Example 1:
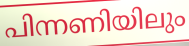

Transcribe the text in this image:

പിന്നണിയിലും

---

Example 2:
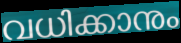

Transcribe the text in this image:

വധിക്കാനും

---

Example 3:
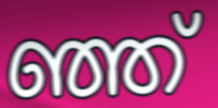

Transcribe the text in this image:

ഞ്ഞ്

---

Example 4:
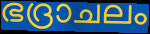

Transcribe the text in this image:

ഭദ്രാചലം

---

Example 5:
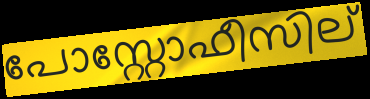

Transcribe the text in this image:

പോസ്റ്റോഫീസില്